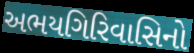
અભયગિરિવાસિનો